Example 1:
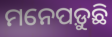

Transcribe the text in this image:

ମନେପଡ଼ୁଛି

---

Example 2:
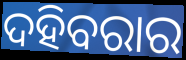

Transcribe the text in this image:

ଦହିବରାର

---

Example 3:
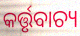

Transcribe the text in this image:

କର୍ତ୍ତୃବାଚ୍ୟ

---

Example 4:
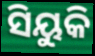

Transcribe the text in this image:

ସିୟୁକି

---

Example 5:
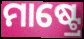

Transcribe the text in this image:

ମାଷ୍ଟ୍ରେ